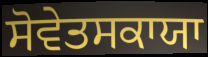
ਸੋਵੇਤਸਕਾਯਾ